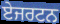
ਏਜਰਟਨ